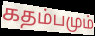
கதம்பமும்